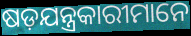
ଷଡ଼ଯନ୍ତ୍ରକାରୀମାନେ